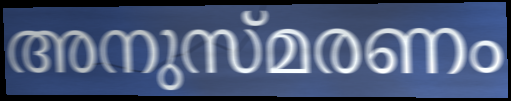
അനുസ്മരണം